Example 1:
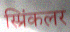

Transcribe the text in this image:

स्प्रिंकलर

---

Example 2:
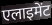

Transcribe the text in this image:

एलाइमेंट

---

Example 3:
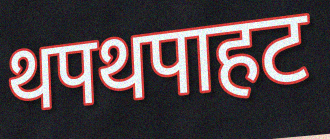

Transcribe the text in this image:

थपथपाहट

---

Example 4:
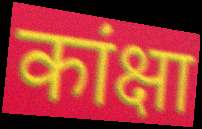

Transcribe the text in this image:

कांक्षा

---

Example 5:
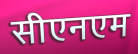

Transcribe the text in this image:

सीएनएम